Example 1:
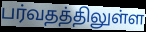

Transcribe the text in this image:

பர்வதத்திலுள்ள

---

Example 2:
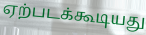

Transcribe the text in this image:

ஏற்படக்கூடியது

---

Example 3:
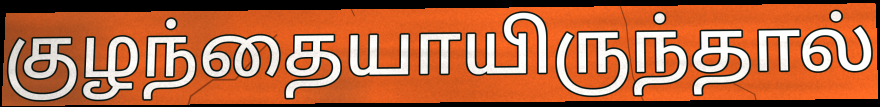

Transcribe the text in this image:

குழந்தையாயிருந்தால்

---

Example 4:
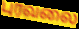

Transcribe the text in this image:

புரவலை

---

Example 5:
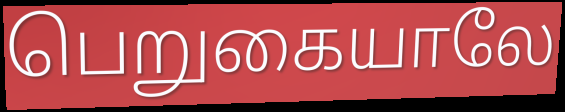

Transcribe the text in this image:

பெறுகையாலே